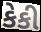
કેકી